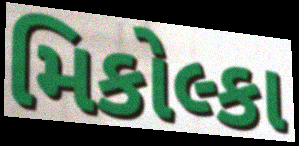
મિકોલ્કા